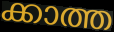
ക്കാത്ത